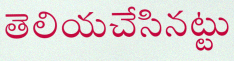
తెలియచేసినట్టు